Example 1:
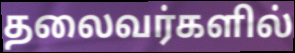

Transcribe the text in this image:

தலைவர்களில்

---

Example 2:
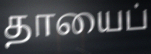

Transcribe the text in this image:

தாயைப்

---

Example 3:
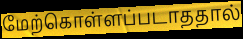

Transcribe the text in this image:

மேற்கொள்ளப்படாததால்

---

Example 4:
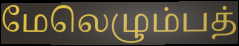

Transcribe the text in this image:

மேலெழும்பத்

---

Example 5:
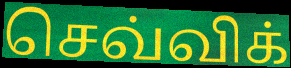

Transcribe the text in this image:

செவ்விக்